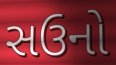
સઉનો